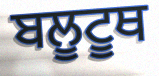
ਬਲੂਟੂਥ